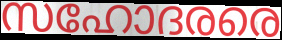
സഹോദരരെ